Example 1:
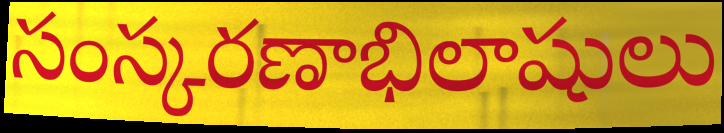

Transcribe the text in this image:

సంస్కరణాభిలాషులు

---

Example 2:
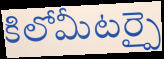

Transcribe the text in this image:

కిలోమీటర్పై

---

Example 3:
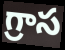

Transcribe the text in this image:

గ్రాస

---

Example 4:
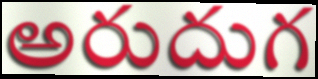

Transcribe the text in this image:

అరుదుగ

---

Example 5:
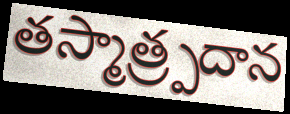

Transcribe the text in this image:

తస్మాత్ర్పదాన